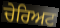
ਚੇਰਿਅਟ